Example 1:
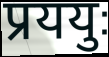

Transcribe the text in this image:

प्रययुः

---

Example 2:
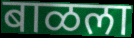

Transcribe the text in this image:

बाळला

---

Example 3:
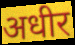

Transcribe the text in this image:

अधीर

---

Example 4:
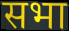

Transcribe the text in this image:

सभा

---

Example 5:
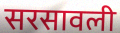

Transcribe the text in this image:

सरसावली